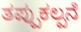
ತಪ್ಪುಕಲ್ಪನೆ